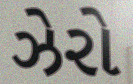
ઝેરો